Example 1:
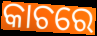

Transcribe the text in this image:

କାଚରେ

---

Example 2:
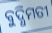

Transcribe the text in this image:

ବୁଦ୍ଧିମତୀ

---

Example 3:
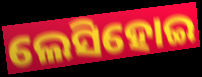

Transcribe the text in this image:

ଲେସିହୋଇ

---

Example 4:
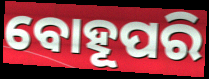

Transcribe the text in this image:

ବୋହୂପରି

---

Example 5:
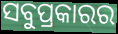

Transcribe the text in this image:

ସବୁପ୍ରକାରର